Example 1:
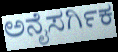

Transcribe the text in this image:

ಅನೈಸರ್ಗಿಕ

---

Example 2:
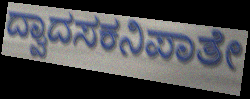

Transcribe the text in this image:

ದ್ವಾದಸಕನಿಪಾತೇ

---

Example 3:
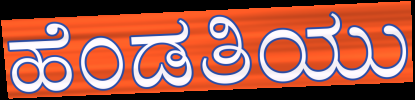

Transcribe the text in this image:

ಹೆಂಡತಿಯು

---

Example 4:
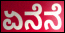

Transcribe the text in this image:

ಏನೆನೆ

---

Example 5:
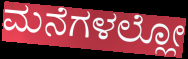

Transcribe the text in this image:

ಮನೆಗಳಲ್ಲೋ